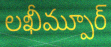
లఖీమ్పూర్